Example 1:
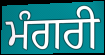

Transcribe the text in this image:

ਮੰਗਰੀ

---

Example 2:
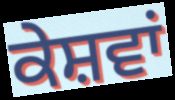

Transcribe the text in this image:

ਕੇਸ਼ਵਾਂ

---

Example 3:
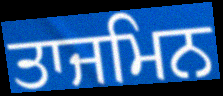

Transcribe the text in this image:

ਤਾਜਮਿਨ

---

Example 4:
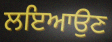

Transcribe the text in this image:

ਲਇਆਉਣ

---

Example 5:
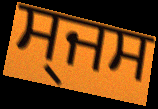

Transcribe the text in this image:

ਸ੍ਜਸ